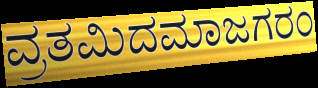
ವ್ರತಮಿದಮಾಜಗರಂ